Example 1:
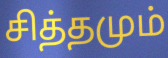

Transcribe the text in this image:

சித்தமும்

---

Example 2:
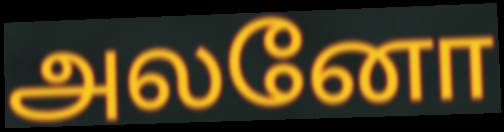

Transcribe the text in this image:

அலனோ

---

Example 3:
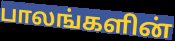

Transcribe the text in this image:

பாலங்களின்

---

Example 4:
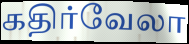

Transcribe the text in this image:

கதிர்வேலா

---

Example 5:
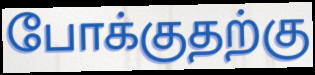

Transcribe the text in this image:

போக்குதற்கு